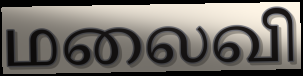
மலைவி